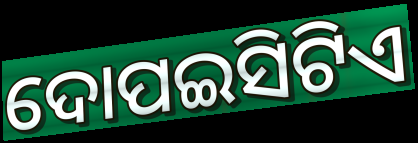
ଦୋପଇସିଟିଏ